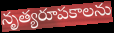
నృత్యరూపకాలను